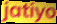
jatiyo